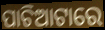
ପାଚିଆଟାରେ